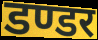
डण्डर